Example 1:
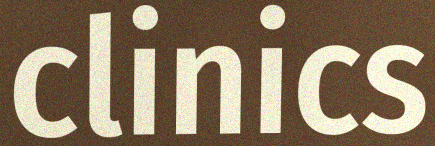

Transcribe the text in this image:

clinics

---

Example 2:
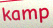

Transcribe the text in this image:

kamp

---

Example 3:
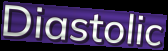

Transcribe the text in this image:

Diastolic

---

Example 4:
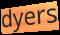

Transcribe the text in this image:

dyers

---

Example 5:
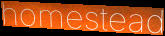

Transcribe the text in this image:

homestead